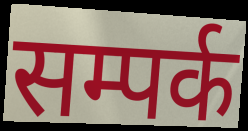
सम्पर्क